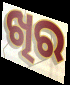
ଖିର